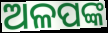
ଅଳପଙ୍କ